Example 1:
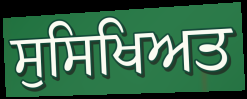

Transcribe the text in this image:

ਸੁਸਿਖਿਅਤ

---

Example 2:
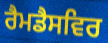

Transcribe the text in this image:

ਰੈਮਡੈਸਵਿਰ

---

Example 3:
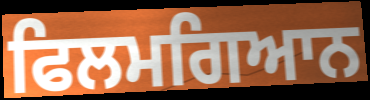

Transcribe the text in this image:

ਫਿਲਮਗਿਆਨ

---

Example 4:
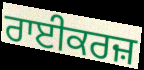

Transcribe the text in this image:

ਰਾਈਕਰਜ਼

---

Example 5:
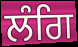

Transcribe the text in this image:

ਲੰਗਿ